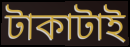
টাকাটাই